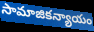
సామాజికన్యాయం